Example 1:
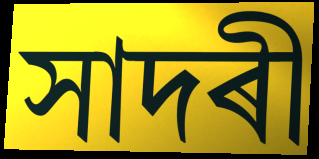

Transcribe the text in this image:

সাদৰী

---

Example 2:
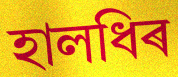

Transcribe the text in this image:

হালধিৰ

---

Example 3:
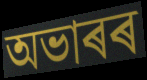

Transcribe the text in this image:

অভাৰৰ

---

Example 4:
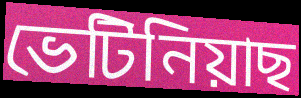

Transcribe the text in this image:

ভেটিনিয়াছ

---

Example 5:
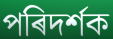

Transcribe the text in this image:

পৰিদৰ্শক